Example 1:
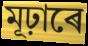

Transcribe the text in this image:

মূঢ়াৰে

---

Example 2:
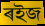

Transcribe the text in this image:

ৰইজ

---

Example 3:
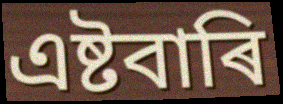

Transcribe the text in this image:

এষ্টবাৰি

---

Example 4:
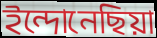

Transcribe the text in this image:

ইন্দোনেছিয়া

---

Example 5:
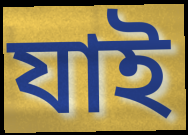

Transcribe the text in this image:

যাই